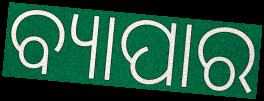
ବ୍ୟାପାର